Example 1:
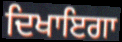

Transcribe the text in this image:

ਦਿਖਾਇਗਾ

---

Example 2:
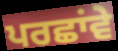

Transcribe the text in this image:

ਪਰਛਾਂਵੇ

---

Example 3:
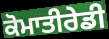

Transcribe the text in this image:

ਕੋਮਾਤੀਰੇਡੀ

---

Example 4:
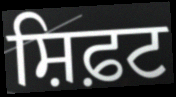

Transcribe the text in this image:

ਸ਼ਿਫ਼ਟ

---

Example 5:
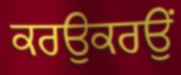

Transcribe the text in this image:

ਕਰਉਕਰਉਂ